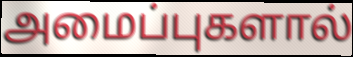
அமைப்புகளால்